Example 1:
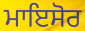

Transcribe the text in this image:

ਮਾਇਸੋਰ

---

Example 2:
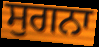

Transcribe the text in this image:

ਸੁਗਨਾ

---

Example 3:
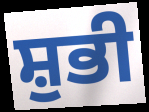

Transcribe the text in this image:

ਸ਼ੁਭੀ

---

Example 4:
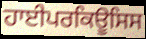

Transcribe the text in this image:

ਹਾਈਪਰਕਿਊਸਿਸ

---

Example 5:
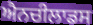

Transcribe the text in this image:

ਐਨਚੀਲਾਡਸ